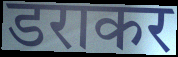
डराकर